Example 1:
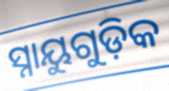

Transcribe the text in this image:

ସ୍ନାୟୁଗୁଡ଼ିକ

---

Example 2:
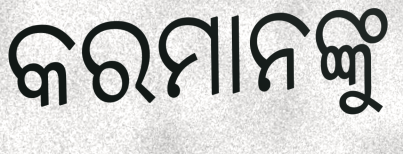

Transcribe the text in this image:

କରମାନଙ୍କୁ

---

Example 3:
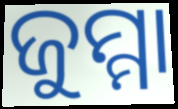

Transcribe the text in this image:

ଜୁମ୍ମା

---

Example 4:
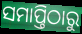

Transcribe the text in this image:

ସମାପ୍ତିଠାରୁ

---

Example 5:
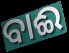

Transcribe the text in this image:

ବାଈ